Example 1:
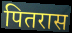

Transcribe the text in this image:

पितरास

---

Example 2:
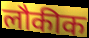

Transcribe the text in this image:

लौकीक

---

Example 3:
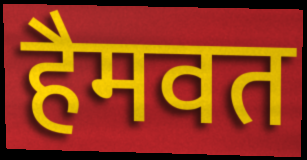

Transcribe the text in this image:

हैमवत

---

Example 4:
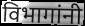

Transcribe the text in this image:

विभागांनी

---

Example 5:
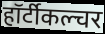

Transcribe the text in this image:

हॉर्टीकल्चर